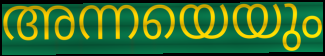
അന്നയെയും